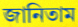
জানিতাম